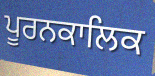
ਪੂਰਨਕਾਲਿਕ